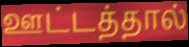
ஊட்டத்தால்